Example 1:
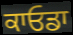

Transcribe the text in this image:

ਕਾਓਡਾ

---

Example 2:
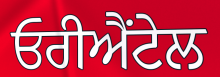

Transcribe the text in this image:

ਓਰੀਐਂਟੇਲ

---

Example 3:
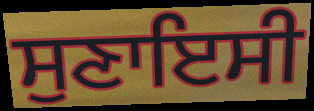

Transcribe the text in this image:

ਸੁਣਾਇਸੀ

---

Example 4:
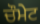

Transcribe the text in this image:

ਚੌਮੇਟ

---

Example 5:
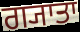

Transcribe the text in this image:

ਗ੍ਯਾਤਾ